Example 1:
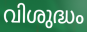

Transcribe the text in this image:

വിശുദ്ധം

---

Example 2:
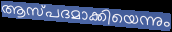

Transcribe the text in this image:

ആസ്പദമാക്കിയെന്നും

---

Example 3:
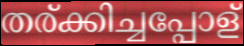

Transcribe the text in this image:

തര്ക്കിച്ചപ്പോള്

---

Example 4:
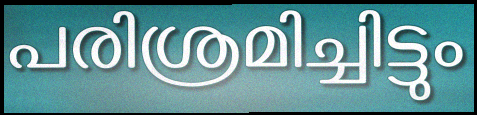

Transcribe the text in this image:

പരിശ്രമിച്ചിട്ടും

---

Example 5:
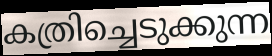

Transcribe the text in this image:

കത്രിച്ചെടുക്കുന്ന